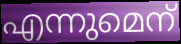
എന്നുമെന്